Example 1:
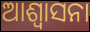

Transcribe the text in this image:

ଆଶ୍ଵାସନା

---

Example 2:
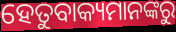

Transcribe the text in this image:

ହେତୁବାକ୍ୟମାନଙ୍କରୁ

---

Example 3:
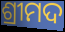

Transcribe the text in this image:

ଶ୍ରୀମଦ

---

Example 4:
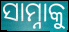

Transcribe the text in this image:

ସାମ୍ନାକୁ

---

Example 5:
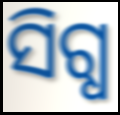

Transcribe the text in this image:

ସିଗ୍ଧ